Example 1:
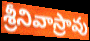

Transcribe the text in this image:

శ్రీనివాస్రావు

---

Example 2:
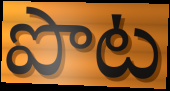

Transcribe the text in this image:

పొట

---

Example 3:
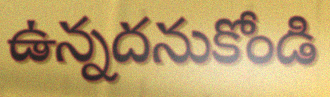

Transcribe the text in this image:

ఉన్నదనుకోండి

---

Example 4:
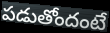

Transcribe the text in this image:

పడుతోందంటే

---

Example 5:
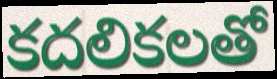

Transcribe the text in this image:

కదలికలతో